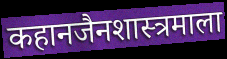
कहानजैनशास्त्रमाला